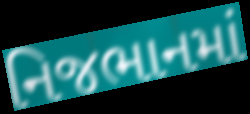
નિજભાનમાં